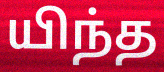
யிந்த